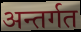
अन्‍तर्गत